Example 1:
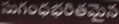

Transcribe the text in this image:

సుగంధభరితమైన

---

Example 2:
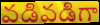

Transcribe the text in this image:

వడివడిగా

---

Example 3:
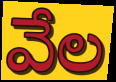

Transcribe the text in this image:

వేల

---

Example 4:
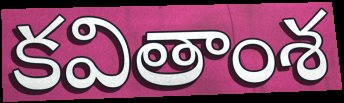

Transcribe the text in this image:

కవితాంశ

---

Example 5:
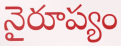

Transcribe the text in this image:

నైరూప్యం